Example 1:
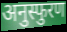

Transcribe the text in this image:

अनुस्फुरण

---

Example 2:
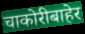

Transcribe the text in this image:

चाकोरीबाहेर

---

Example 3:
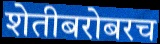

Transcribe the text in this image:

शेतीबरोबरच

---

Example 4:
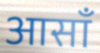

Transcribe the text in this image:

आसाँ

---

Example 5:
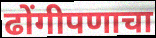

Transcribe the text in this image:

ढोंगीपणाचा